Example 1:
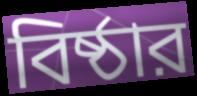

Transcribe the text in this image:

বিষ্ঠার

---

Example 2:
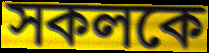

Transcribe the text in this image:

সকলকে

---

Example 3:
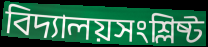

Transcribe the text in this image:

বিদ্যালয়সংশ্লিষ্ট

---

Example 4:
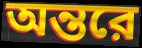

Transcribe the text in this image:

অন্তরে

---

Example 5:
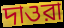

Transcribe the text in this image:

দাওরা